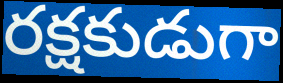
రక్షకుడుగా